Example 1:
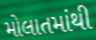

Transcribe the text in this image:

મોલાતમાંથી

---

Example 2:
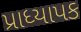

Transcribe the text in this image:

પ્રાધ્યાપક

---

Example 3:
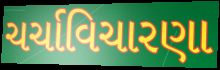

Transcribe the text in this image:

ચર્ચાવિચારણા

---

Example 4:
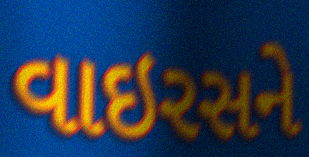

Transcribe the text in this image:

વાઇરસને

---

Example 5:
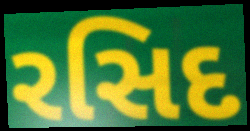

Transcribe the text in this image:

રસિદ